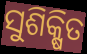
ସୁଶିକ୍ଷିତ